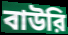
বাউরি